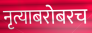
नृत्याबरोबरच